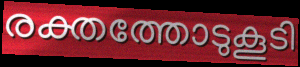
രക്തത്തോടുകൂടി